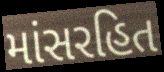
માંસરહિત